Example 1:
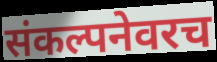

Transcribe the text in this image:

संकल्पनेवरच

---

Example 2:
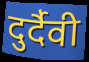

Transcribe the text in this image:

दुर्दैवी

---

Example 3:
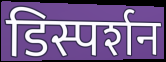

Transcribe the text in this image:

डिस्पर्शन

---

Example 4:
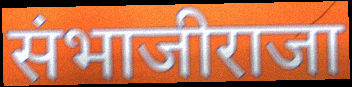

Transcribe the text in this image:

संभाजीराजा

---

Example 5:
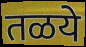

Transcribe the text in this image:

तळये